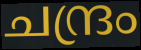
ചന്ദ്രം